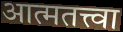
आत्मतत्त्वा